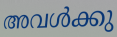
അവൾക്കു